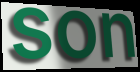
son